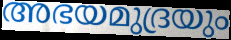
അഭയമുദ്രയും